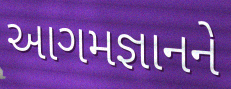
આગમજ્ઞાનને